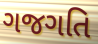
ગજગતિ